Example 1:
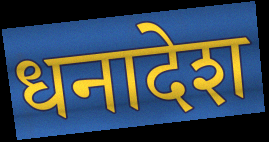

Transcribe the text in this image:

धनादेश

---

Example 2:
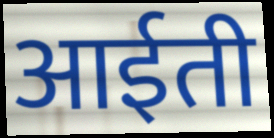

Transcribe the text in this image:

आईती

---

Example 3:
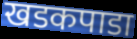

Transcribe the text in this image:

खडकपाडा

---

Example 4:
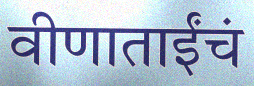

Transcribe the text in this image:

वीणाताईंचं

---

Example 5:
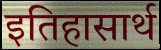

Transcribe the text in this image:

इतिहासार्थ